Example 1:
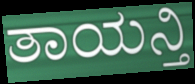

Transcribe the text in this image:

ತಾಯನ್ತಿ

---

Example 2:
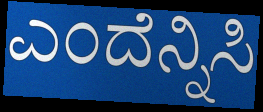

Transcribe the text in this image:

ಎಂದೆನ್ನಿಸಿ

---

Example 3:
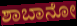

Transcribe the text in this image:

ಶಾಬಾನೋ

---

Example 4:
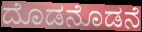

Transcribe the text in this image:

ದೊಡನೊಡನೆ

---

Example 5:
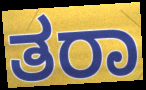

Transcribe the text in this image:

ತರಾ